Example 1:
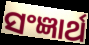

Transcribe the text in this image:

ସଂଜ୍ଞାର୍ଥ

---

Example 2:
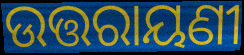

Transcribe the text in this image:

ଉତ୍ତରାୟଣୀ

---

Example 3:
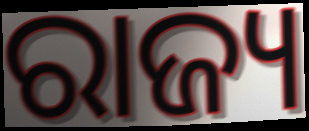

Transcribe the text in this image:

ରାଜ୍ୟ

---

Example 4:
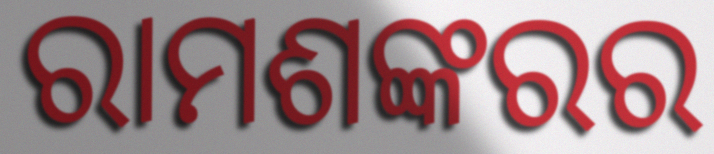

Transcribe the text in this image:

ରାମଶଙ୍କରର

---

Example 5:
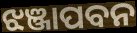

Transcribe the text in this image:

ଝଞ୍ଜାପବନ